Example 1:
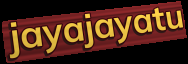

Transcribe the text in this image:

jayajayatu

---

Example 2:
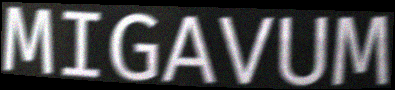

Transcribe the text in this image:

MIGAVUM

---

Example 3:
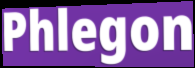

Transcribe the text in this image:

Phlegon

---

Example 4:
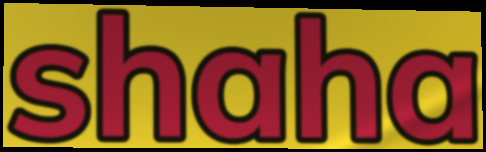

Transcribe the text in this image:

shaha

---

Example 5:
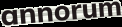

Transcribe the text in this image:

annorum